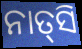
ନାତ୍‌ସି